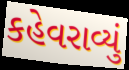
કહેવરાવ્યું